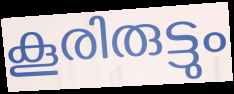
കൂരിരുട്ടും